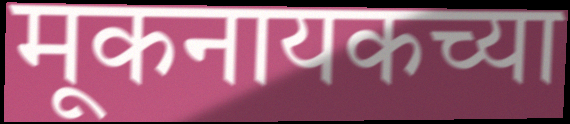
मूकनायकच्या